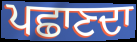
ਪਛਾਣਦਾ